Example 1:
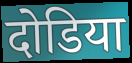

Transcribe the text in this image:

दोडिया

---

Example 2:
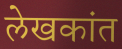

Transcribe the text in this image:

लेखकांत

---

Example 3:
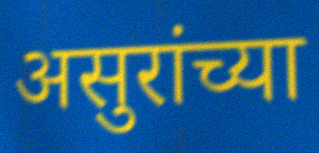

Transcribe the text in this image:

असुरांच्या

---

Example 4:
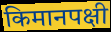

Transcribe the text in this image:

किमानपक्षी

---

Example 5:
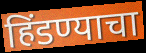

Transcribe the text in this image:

हिंडण्याचा